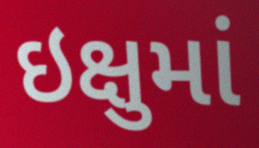
ઇક્ષુમાં